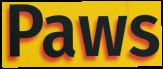
Paws